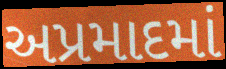
અપ્રમાદમાં